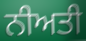
ਨੀਅਤੀ